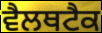
ਵੈਲਥਟੈਕ